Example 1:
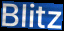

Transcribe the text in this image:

Blitz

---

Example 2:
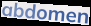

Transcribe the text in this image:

abdomen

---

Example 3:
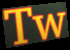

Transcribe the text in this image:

Tw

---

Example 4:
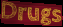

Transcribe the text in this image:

Drugs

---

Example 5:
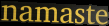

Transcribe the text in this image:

namaste